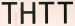
THTT